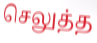
செலுத்த